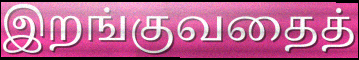
இறங்குவதைத்